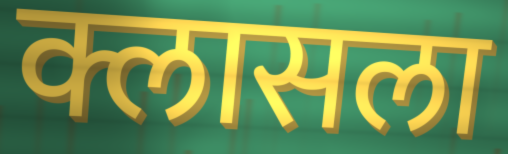
क्लासला